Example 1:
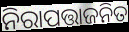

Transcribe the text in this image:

ନିରାପତ୍ତାଜନିତ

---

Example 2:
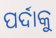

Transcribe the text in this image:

ପର୍ଦାକୁ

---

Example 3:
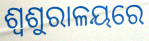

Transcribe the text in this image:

ଶ୍ୱଶୁରାଳୟରେ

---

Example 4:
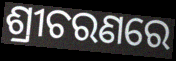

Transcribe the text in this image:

ଶ୍ରୀଚରଣରେ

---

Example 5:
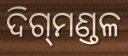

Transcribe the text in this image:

ଦିଗ୍‌ମଣ୍ଡଳ